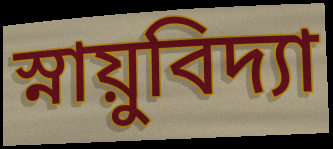
স্নায়ুবিদ্যা